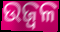
ଉଜ୍ବଳ